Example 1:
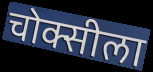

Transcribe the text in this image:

चोक्सीला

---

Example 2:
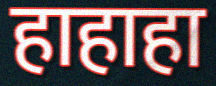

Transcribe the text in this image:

हाहाहा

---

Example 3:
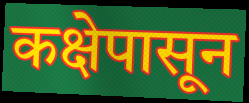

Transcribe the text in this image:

कक्षेपासून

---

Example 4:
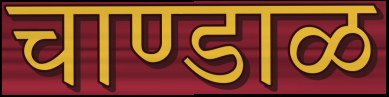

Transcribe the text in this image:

चाण्डाळ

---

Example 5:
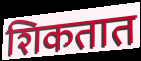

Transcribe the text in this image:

शिकतात